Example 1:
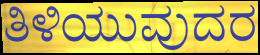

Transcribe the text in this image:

ತಿಳಿಯುವುದರ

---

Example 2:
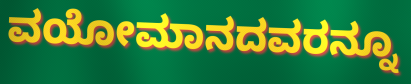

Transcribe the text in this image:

ವಯೋಮಾನದವರನ್ನೂ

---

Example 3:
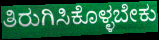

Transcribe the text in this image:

ತಿರುಗಿಸಿಕೊಳ್ಳಬೇಕು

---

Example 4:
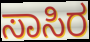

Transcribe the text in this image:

ಸಾಸಿರ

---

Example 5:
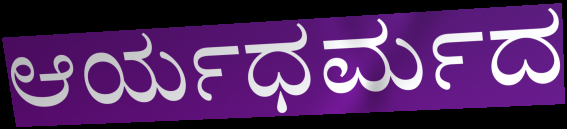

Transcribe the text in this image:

ಆರ್ಯಧರ್ಮದ